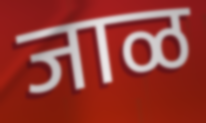
जाळ